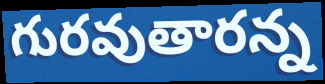
గురవుతారన్న